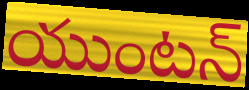
యుంటన్